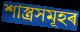
শাস্ত্ৰসমূহৰ